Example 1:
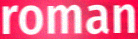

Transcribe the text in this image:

roman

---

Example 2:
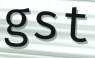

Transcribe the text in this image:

gst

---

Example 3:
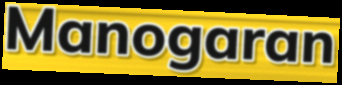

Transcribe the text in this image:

Manogaran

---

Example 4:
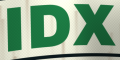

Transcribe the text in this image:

IDX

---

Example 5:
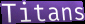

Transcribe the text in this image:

Titans